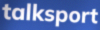
talksport